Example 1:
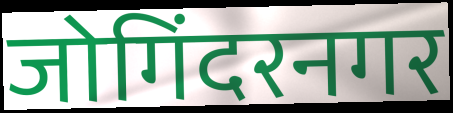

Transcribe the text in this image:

जोगिंदरनगर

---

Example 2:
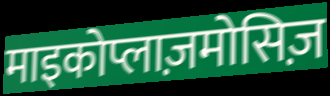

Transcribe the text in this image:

माइकोप्लाज़मोसिज़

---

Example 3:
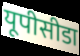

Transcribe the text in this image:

यूपीसीडा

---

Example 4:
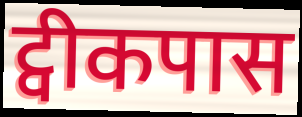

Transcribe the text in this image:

ट्वीकपास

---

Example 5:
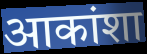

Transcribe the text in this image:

आकांशा